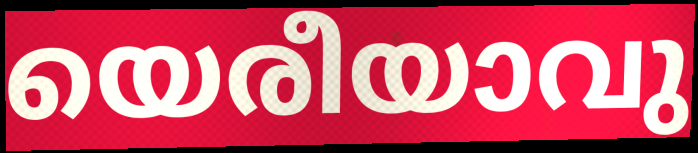
യെരീയാവു